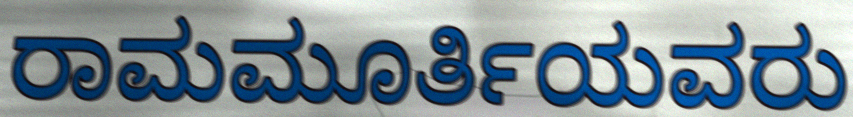
ರಾಮಮೂರ್ತಿಯವರು